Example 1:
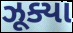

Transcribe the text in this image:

ઝૂક્યા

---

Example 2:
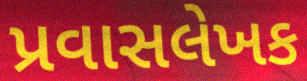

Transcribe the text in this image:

પ્રવાસલેખક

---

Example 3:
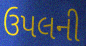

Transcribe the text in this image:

ઉપલની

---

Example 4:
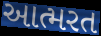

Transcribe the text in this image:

આત્મરત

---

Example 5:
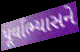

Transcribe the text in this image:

પૂર્વાભ્યાસને